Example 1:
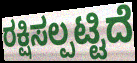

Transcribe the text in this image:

ರಕ್ಷಿಸಲ್ಪಟ್ಟಿದೆ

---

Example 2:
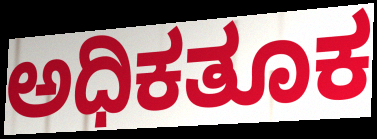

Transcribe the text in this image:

ಅಧಿಕತೂಕ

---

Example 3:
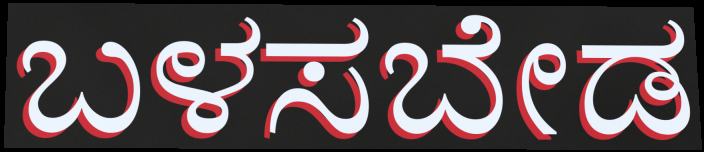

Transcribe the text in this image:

ಬಳಸಬೇಡ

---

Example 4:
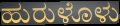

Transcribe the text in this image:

ಹುರುಳೊಳು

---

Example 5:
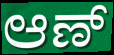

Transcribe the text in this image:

ಆಣ್